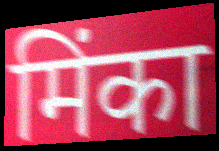
मिंका